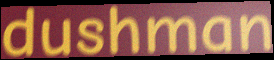
dushman